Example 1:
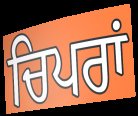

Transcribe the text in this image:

ਚਿਪਰਾਂ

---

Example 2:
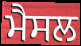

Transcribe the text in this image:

ਮੈਸਲ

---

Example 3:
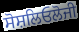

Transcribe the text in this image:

ਸੋਸ਼ਲਿਓਲੋਜੀ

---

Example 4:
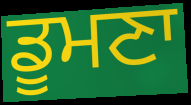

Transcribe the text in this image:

ਡੂਮਣਾ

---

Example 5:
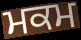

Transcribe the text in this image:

ਮਕਮ